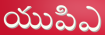
యుపిఎ